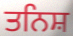
ਤਨਿਸ਼